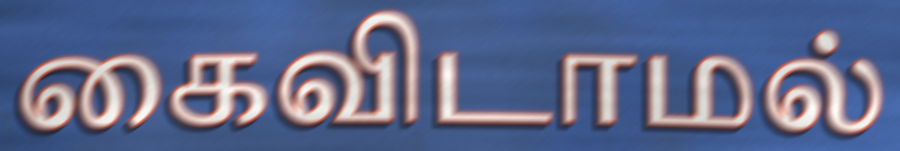
கைவிடாமல்